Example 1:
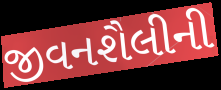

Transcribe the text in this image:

જીવનશૈલીની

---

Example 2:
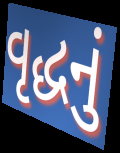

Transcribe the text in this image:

વૃદ્ધનું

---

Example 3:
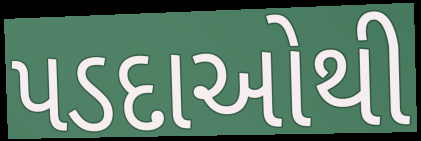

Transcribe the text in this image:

પડદાઓથી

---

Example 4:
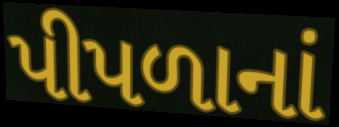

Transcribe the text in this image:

પીપળાનાં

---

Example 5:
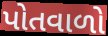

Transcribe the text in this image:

પોતવાળો